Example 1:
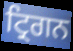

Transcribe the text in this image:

ਟ੍ਰਿਗਨ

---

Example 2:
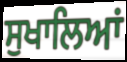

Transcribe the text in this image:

ਸੁਖਾਲਿਆਂ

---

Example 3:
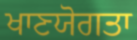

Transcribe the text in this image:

ਖਾਣਯੋਗਤਾ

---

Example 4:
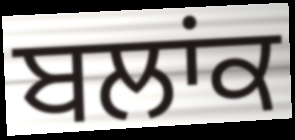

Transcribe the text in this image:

ਬਲਾਂਕ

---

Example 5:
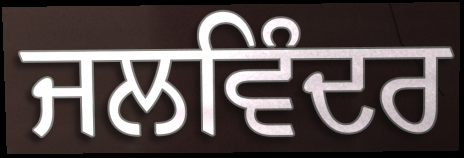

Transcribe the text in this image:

ਜਲਵਿੰਦਰ